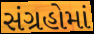
સંગ્રહોમાં